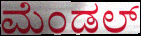
ಮೆಂಡಲ್